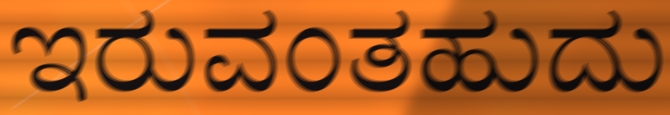
ಇರುವಂತಹುದು